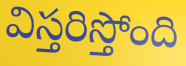
విస్తరిస్తోంది